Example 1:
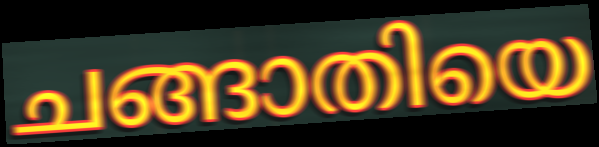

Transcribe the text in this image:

ചങ്ങാതിയെ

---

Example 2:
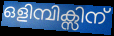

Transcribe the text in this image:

ഒളിമ്പിക്സിന്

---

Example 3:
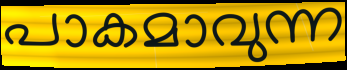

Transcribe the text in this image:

പാകമാവുന്ന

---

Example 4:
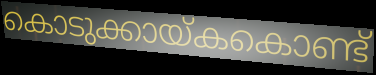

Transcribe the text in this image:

കൊടുക്കായ്കകൊണ്ട്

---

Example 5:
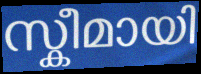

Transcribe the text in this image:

സ്കീമായി